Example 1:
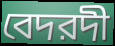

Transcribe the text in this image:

বেদরদী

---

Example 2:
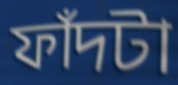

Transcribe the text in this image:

ফাঁদটা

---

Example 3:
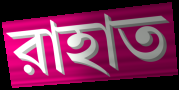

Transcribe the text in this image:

রাহাত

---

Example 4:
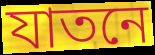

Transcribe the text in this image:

যাতনে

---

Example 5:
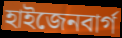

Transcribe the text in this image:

হাইজেনবার্গ